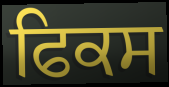
ਫਿਕਸ